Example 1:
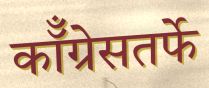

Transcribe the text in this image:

कॉँग्रेसतर्फे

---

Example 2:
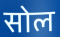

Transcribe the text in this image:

सोल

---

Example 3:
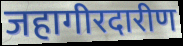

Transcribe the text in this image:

जहागीरदारीण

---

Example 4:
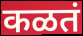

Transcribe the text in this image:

कळतं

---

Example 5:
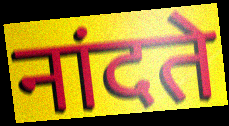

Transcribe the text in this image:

नांदते